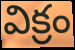
విక్రం